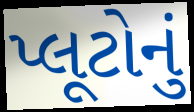
પ્લૂટોનું